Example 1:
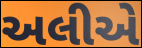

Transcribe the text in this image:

અલીએ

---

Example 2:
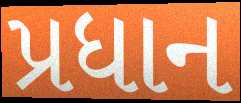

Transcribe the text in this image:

પ્રધાન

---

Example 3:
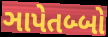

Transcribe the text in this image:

ઞાપેતબ્બો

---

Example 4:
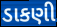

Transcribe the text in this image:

ડાકણી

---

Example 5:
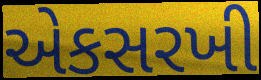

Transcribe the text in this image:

એકસરખી